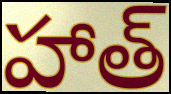
హాత్